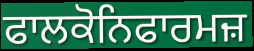
ਫਾਲਕੋਨਿਫਾਰਮਜ਼